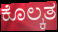
ಕೊಲ್ಕತ